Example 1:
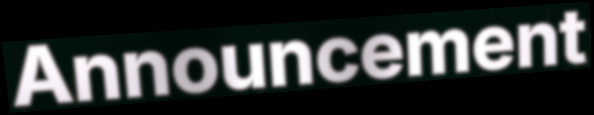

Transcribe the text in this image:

Announcement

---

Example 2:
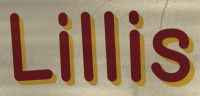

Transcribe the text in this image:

Lillis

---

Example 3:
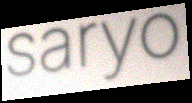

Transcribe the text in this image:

saryo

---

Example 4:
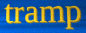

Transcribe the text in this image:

tramp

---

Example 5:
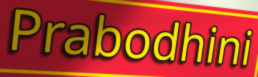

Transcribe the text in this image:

Prabodhini